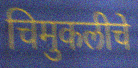
चिमुकलीचे